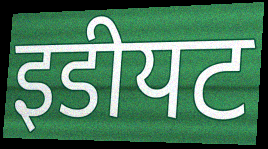
इडीयट